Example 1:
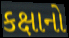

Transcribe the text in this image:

કક્ષાનો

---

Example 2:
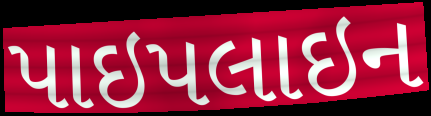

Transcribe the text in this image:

પાઇપલાઇન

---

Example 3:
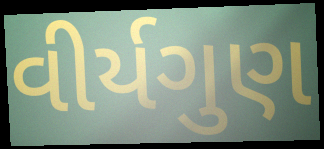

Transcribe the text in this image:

વીર્યગુણ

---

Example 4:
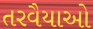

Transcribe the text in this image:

તરવૈયાઓ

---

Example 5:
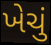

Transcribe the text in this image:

ખેચું